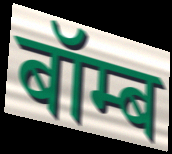
बॉम्ब